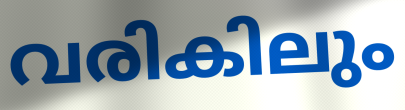
വരികിലും